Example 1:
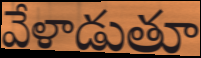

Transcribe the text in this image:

వేళాడుతూ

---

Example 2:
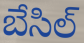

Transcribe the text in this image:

బేసిల్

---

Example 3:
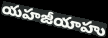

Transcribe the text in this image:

యహజీయాహు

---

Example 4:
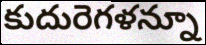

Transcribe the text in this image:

కుదురెగళన్నూ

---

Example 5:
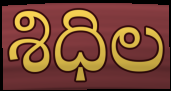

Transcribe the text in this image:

శిధిల